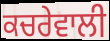
ਕਚਰੇਵਾਲੀ